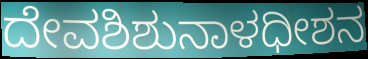
ದೇವಶಿಶುನಾಳಧೀಶನ